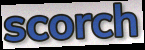
scorch